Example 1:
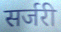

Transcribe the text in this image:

सर्जरी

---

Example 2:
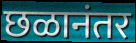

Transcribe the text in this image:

छळानंतर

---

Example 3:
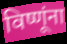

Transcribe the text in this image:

विष्णूंना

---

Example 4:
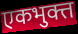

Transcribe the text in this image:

एकभुक्त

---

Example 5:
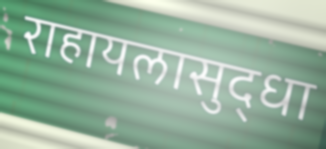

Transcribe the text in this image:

राहायलासुद्धा